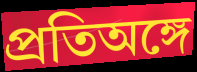
প্রতিঅঙ্গে